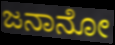
ಜನಾನೋ